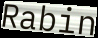
Rabin